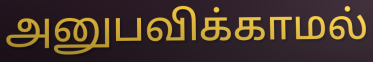
அனுபவிக்காமல்